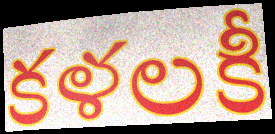
కళలకీ